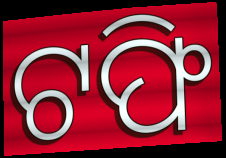
ଟଫି